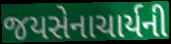
જયસેનાચાર્યની